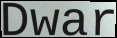
Dwar